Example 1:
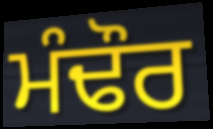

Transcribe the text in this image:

ਮੰਢੌਰ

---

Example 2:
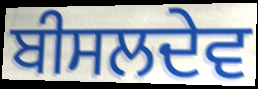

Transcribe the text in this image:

ਬੀਸਲਦੇਵ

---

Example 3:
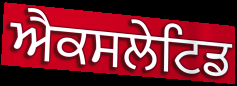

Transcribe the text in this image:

ਐਕਸਲੇਟਿਡ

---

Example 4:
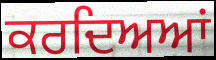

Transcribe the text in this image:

ਕਰਦਿਅਆਂ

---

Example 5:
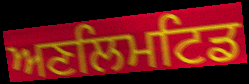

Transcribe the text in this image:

ਅਣਲਿਮਟਿਡ